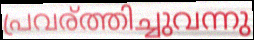
പ്രവര്ത്തിച്ചുവന്നു